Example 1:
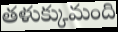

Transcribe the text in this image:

తళుక్కుమంది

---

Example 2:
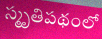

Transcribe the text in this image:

స్మృతిపథంలో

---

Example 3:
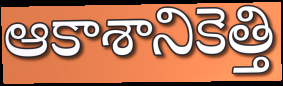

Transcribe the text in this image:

ఆకాశానికెత్తి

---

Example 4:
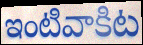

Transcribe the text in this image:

ఇంటివాకిట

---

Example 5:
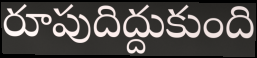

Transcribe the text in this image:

రూపుదిద్దుకుంది